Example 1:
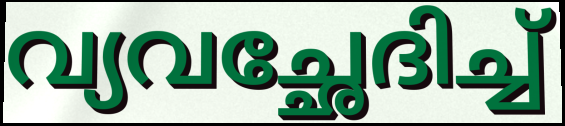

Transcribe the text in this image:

വ്യവച്ഛേദിച്ച്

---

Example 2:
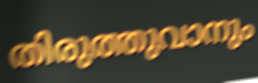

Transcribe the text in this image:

തിരുത്തുവാനും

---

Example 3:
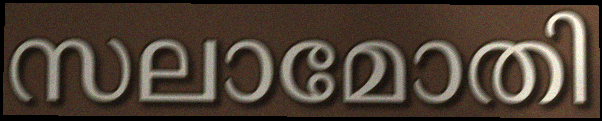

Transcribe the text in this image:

സലാമോതി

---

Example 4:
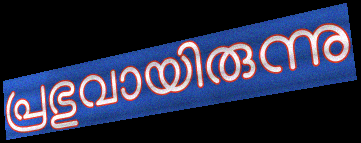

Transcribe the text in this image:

പ്രഭുവായിരുന്നു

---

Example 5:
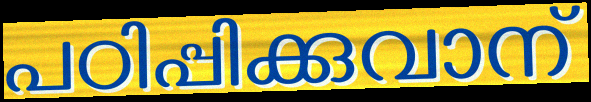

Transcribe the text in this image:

പഠിപ്പിക്കുവാന്